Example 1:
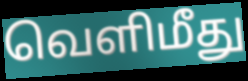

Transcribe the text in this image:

வெளிமீது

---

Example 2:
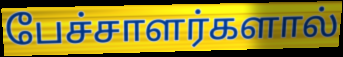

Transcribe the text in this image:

பேச்சாளர்களால்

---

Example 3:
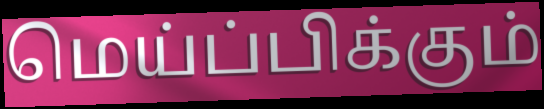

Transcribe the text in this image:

மெய்ப்பிக்கும்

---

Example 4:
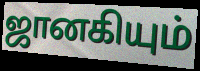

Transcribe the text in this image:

ஜானகியும்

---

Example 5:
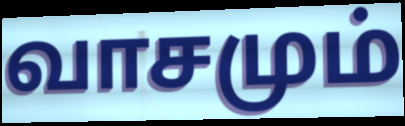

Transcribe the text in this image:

வாசமும்